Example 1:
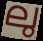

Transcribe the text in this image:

ലു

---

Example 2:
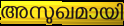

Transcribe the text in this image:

അസുഖമായി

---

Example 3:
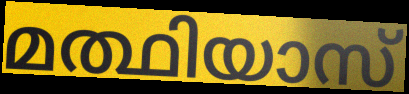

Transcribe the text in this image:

മത്ഥിയാസ്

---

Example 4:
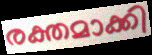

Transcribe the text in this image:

രക്തമാക്കി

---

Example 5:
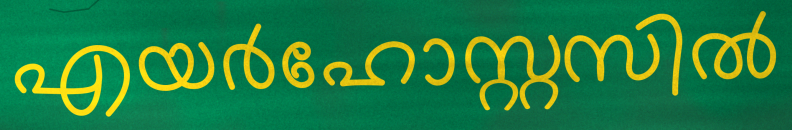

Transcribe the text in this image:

എയർഹോസ്റ്റസിൽ